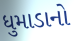
ધુમાડાનો